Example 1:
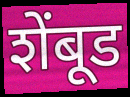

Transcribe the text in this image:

शेंबूड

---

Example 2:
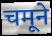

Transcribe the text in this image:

चमूने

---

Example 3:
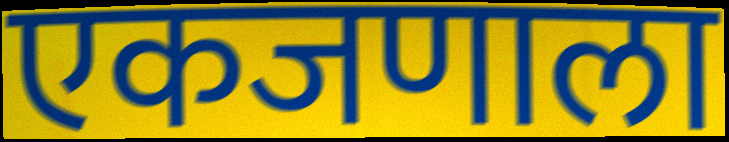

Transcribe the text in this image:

एकजणाला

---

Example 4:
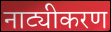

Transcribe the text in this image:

नाट्यीकरण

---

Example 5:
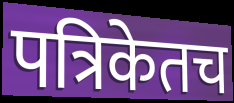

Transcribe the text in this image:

पत्रिकेतच